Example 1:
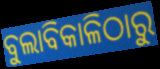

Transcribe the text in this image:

ବୁଲାବିକାଳିଠାରୁ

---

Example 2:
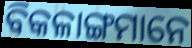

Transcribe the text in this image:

ବିକଳାଙ୍ଗମାନେ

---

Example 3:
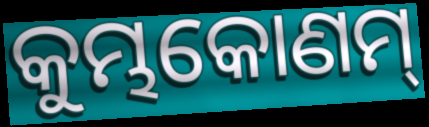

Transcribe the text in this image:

କୁମ୍ଭକୋଣମ୍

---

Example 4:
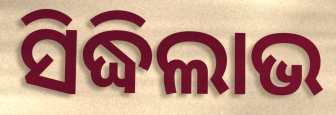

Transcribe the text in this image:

ସିଦ୍ଧିଲାଭ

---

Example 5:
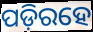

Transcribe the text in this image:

ପଡ଼ିରହେ